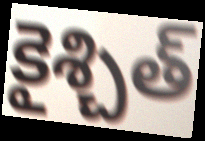
కైశ్చిత్